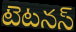
టెటనస్